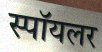
स्पॉयलर